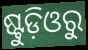
ଷ୍ଟୁଡ଼ିଓରୁ